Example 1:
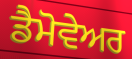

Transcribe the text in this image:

ਡੈਮੋਵੇਅਰ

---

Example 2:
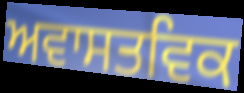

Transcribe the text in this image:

ਅਵਾਸਤਵਿਕ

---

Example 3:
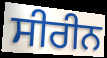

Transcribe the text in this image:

ਸੀਰੀਨ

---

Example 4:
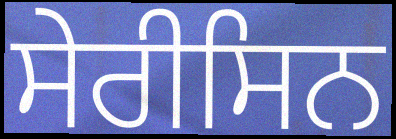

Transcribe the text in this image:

ਸੇਰੀਸਿਨ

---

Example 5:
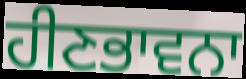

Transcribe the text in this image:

ਹੀਣਭਾਵਨਾ